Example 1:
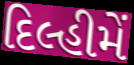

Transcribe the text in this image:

દિલ્હીમેં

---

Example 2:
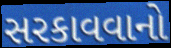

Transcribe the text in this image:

સરકાવવાનો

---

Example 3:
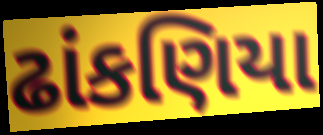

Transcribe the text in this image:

ઢાંકણિયા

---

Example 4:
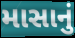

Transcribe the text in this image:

માસાનું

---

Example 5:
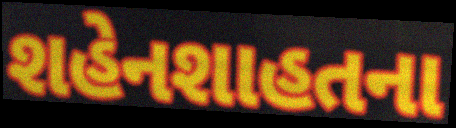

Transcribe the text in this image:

શહેનશાહતના